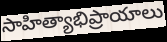
సాహిత్యాభిప్రాయాలు